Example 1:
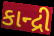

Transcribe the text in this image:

કાન્દ્રી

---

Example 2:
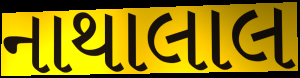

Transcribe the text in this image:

નાથાલાલ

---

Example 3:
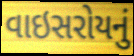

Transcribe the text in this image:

વાઇસરોયનું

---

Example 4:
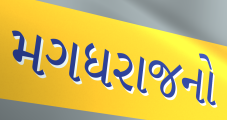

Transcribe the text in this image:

મગધરાજનો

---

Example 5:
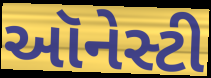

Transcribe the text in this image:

ઑનેસ્ટી